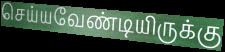
செய்யவேண்டியிருக்கு